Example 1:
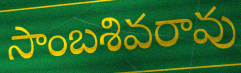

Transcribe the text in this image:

సాంబశివరావు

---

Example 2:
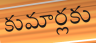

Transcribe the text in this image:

కుమార్లకు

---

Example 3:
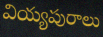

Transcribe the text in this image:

వియ్యపురాలు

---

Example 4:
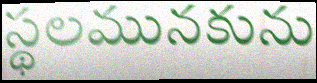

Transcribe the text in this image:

స్థలమునకును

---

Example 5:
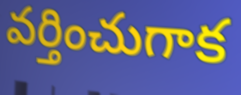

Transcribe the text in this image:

వర్తించుగాక